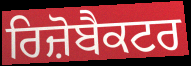
ਰਿਜ਼ੋਬੈਕਟਰ